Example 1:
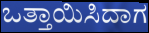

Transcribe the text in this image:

ಒತ್ತಾಯಿಸಿದಾಗ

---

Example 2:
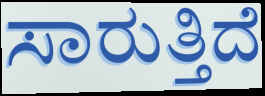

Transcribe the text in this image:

ಸಾರುತ್ತಿದೆ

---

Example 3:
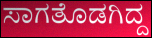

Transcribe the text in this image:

ಸಾಗತೊಡಗಿದ್ದ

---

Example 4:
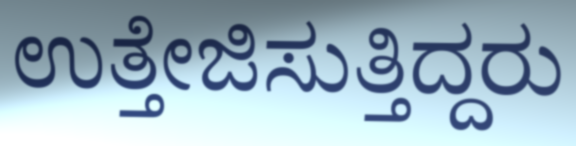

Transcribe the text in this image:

ಉತ್ತೇಜಿಸುತ್ತಿದ್ದರು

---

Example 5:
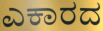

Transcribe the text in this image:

ಎಕಾರದ